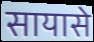
सायासे